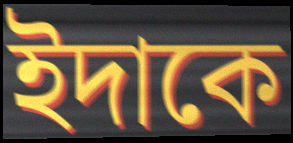
ইদাকে